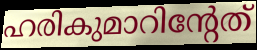
ഹരികുമാറിന്റേത്